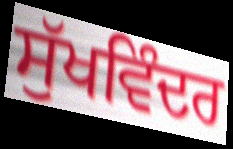
ਸੁੱਖਵਿੰਦਰ